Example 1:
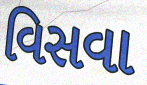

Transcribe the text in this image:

વિસવા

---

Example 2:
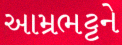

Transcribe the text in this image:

આમ્રભટ્ટને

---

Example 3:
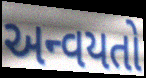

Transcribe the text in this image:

અન્વયતો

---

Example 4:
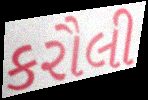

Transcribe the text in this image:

કરૌલી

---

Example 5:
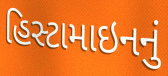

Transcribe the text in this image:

હિસ્ટામાઇનનું